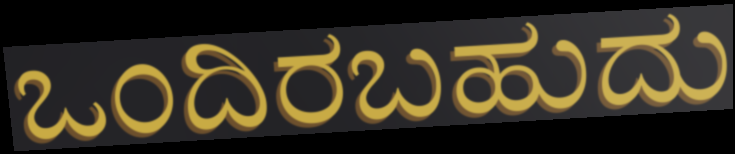
ಒಂದಿರಬಹುದು